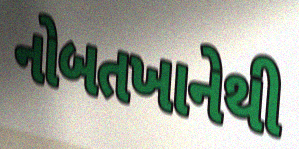
નોબતખાનેથી